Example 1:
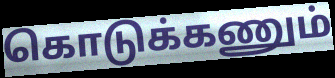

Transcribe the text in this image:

கொடுக்கணும்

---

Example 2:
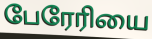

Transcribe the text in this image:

பேரேரியை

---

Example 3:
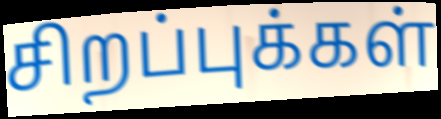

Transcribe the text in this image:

சிறப்புக்கள்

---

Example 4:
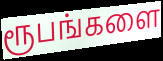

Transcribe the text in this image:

ரூபங்களை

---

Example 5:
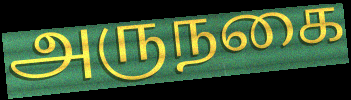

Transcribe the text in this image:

அருநகை